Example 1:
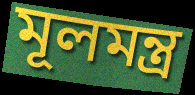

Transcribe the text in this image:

মূলমন্ত্র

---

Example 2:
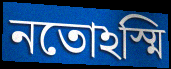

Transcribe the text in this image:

নতোঽস্মি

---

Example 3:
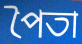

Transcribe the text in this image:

পৈতা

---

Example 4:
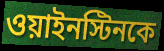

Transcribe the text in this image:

ওয়াইনস্টিনকে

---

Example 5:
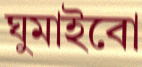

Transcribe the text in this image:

ঘুমাইবো